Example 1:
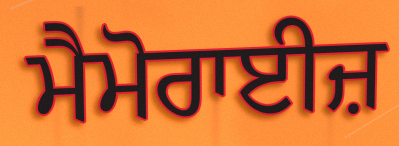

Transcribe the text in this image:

ਮੈਮੋਰਾਈਜ਼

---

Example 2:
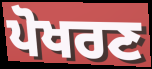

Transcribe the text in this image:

ਪੋਖਰਣ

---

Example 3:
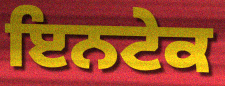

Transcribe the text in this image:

ਇਨਟੇਕ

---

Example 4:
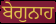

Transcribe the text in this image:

ਬੇਗੁਨਾਹ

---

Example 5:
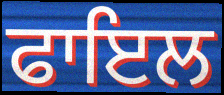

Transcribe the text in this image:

ਫਾਇਲ